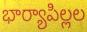
భార్యాపిల్లల